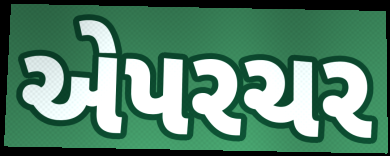
એપરચર